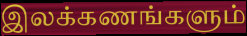
இலக்கணங்களும்